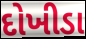
દોખીડા